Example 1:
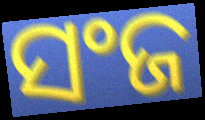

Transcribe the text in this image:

ସଂଜ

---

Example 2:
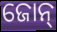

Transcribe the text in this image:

ଜୋନ୍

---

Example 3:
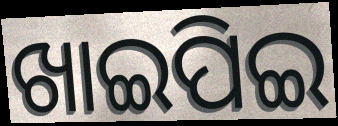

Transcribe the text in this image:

ଖାଇପିଇ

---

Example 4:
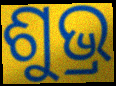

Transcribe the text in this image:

ଶୁଭ୍ର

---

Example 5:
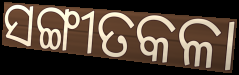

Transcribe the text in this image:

ସଙ୍ଗୀତକଳା